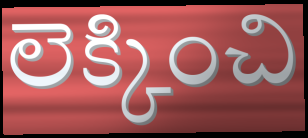
లెక్కించి